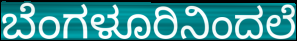
ಬೆಂಗಳೂರಿನಿಂದಲೆ